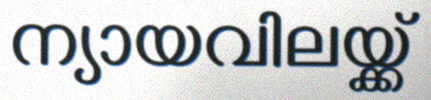
ന്യായവിലയ്ക്ക്